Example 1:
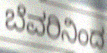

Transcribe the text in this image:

ಬೆವರಿನಿಂದ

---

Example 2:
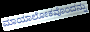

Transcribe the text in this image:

ಮಾಯಾಲೋಕವೊಂದನ್ನು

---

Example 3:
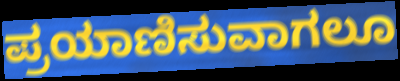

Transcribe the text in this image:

ಪ್ರಯಾಣಿಸುವಾಗಲೂ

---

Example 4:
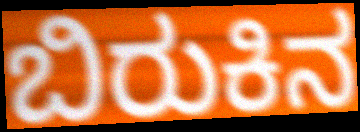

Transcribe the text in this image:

ಬಿರುಕಿನ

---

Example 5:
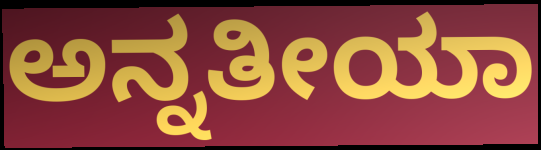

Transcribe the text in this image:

ಅನ್ನತೀಯಾ